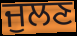
ਜੁਲਣ